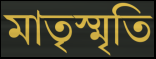
মাতৃস্মৃতি